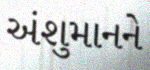
અંશુમાનને